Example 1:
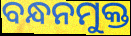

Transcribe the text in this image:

ବନ୍ଧନମୁକ୍ତ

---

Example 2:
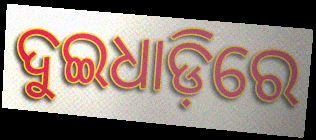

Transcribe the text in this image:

ଦୁଇଧାଡ଼ିରେ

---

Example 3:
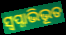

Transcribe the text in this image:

ସ୍ଵପ୍ନାଭିଭୂତ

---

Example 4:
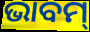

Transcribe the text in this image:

ଭାବମ୍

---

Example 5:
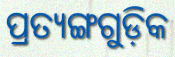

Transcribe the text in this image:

ପ୍ରତ୍ୟଙ୍ଗଗୁଡ଼ିକ